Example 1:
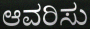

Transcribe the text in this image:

ಆವರಿಸು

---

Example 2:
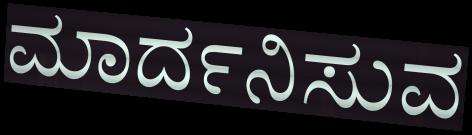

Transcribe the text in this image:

ಮಾರ್ದನಿಸುವ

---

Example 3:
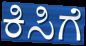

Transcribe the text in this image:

ಕಿಸಿಗೆ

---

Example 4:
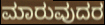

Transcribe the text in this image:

ಮಾರುವುದರ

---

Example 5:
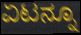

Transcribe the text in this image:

ಏಟನ್ನೂ